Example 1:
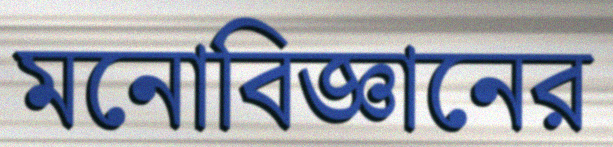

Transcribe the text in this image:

মনোবিজ্ঞানের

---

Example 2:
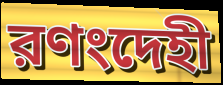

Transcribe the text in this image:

রণংদেহী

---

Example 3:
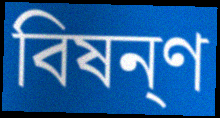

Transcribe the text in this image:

বিষন্ণ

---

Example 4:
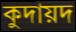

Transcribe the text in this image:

কুদায়দ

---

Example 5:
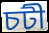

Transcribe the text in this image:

চটী